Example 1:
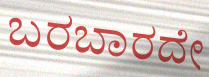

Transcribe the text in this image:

ಬರಬಾರದೇ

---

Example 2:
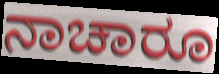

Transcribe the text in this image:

ನಾಚಾರೂ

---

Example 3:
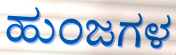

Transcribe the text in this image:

ಹುಂಜಗಳ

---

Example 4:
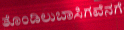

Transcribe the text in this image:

ತೊಂಡಿಲುಬಾಸಿಗವೆನಗೆ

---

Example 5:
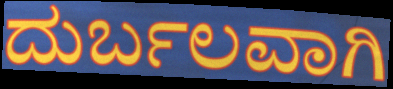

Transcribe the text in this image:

ದುರ್ಬಲವಾಗಿ